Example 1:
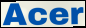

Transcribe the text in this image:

Acer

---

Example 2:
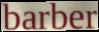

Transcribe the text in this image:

barber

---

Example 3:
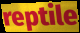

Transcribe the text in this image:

reptile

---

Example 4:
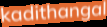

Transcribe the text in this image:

kadithangal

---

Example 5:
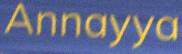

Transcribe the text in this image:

Annayya